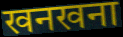
खनखना